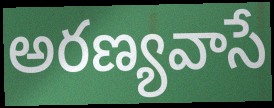
అరణ్యవాసే